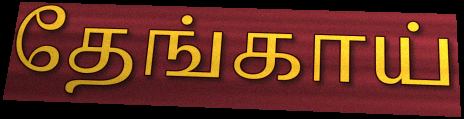
தேங்காய்